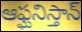
ఆఫ్ఘనిస్తాన్